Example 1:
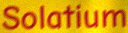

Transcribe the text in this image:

Solatium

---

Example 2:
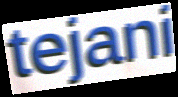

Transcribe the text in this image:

tejani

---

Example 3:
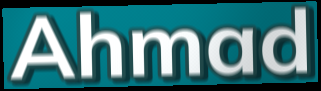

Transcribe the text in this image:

Ahmad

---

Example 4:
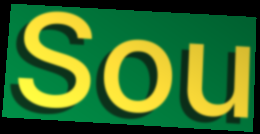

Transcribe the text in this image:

Sou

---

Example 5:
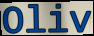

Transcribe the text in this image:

Oliv